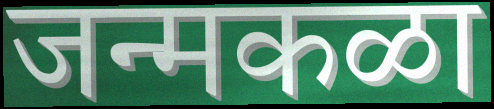
जन्मकळा